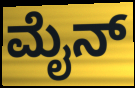
ಮೈನ್